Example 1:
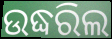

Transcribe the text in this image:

ଉଦ୍ଧରିଲ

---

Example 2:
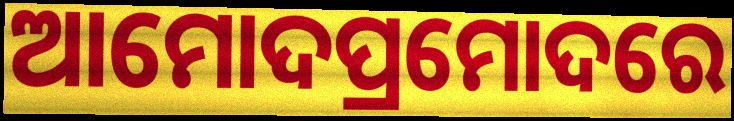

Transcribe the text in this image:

ଆମୋଦପ୍ରମୋଦରେ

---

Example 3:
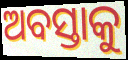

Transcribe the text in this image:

ଅବସ୍ତାକୁ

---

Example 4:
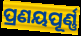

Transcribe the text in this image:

ପ୍ରଣୟପୂର୍ଣ୍ଣ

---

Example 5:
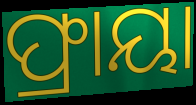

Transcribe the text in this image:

ଫ୍ରାୟା